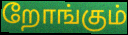
றோங்கும்